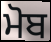
ਮੋਬ